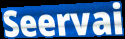
Seervai